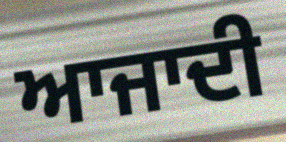
ਆਜਾਦੀ